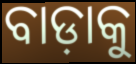
ବାଡ଼ାକୁ